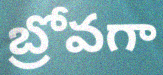
బ్రోవగా